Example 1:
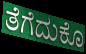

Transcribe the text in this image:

ತೆಗೆದುಕೊ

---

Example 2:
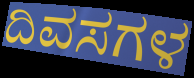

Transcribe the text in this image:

ದಿವಸಗಳ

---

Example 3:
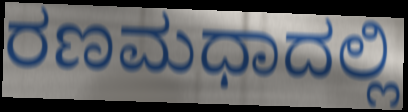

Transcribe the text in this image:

ರಣಮಧಾದಲ್ಲಿ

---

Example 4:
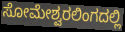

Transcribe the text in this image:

ಸೋಮೇಶ್ವರಲಿಂಗದಲ್ಲಿ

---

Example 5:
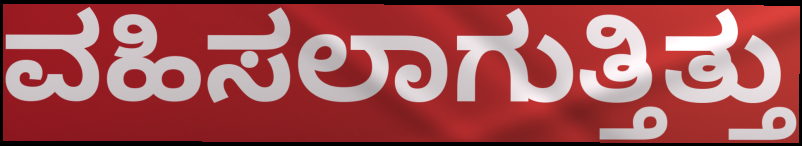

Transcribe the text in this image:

ವಹಿಸಲಾಗುತ್ತಿತ್ತು